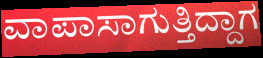
ವಾಪಾಸಾಗುತ್ತಿದ್ದಾಗ